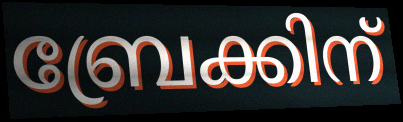
ബ്രേക്കിന്